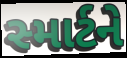
સ્માર્ટને